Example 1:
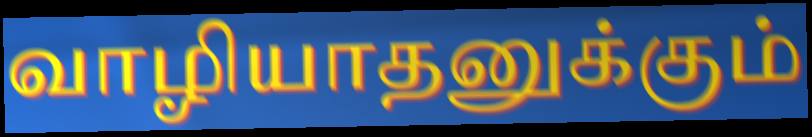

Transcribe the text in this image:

வாழியாதனுக்கும்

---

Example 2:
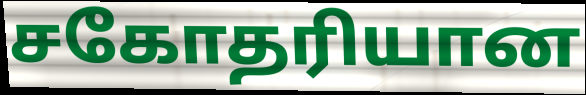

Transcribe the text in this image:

சகோதரியான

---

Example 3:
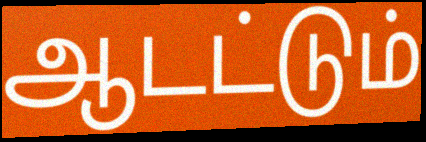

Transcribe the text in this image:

ஆடட்டும்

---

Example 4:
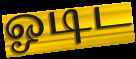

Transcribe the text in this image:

ஓடிட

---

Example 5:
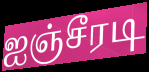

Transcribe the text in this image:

ஐஞ்சீரடி